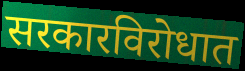
सरकारविरोधात